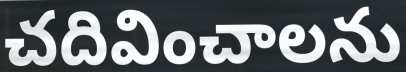
చదివించాలను